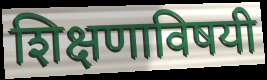
शिक्षणाविषयी